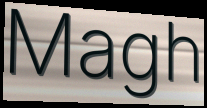
Magh